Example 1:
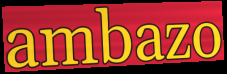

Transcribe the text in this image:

ambazo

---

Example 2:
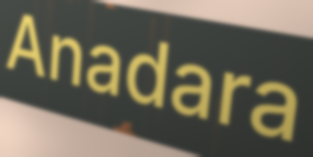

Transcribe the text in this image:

Anadara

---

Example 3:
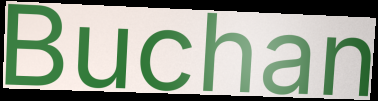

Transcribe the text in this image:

Buchan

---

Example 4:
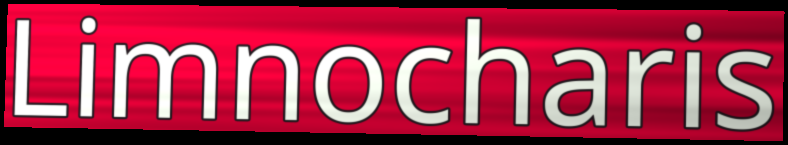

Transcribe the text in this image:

Limnocharis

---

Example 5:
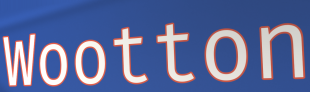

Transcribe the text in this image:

Wootton